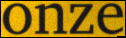
onze